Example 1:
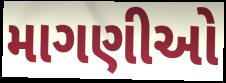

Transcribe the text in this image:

માગણીઓ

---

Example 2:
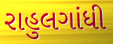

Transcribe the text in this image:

રાહુલગાંધી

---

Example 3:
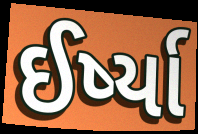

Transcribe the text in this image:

ઈર્ષ્યા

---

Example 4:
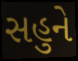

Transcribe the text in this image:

સહુને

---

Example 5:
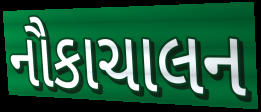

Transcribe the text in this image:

નૌકાચાલન